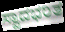
ಸ್ವಾದಭರಿತ